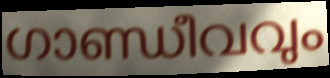
ഗാണ്ഡീവവും